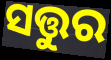
ସତ୍ତୁର